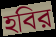
হবির